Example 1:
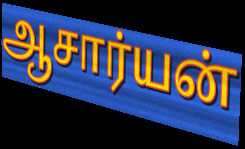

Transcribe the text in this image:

ஆசார்யன்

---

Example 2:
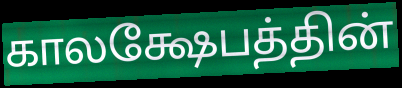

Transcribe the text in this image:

காலக்ஷேபத்தின்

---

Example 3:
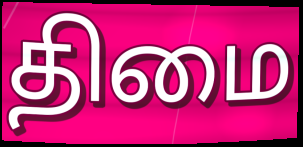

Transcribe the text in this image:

திமை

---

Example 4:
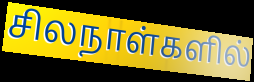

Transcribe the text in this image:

சிலநாள்களில்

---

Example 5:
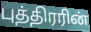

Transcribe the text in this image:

புத்திரரின்